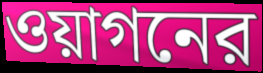
ওয়াগনের